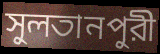
সুলতানপুরী